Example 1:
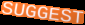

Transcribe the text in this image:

SUGGEST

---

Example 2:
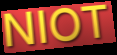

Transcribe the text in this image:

NIOT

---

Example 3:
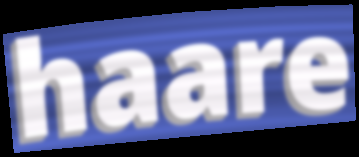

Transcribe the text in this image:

haare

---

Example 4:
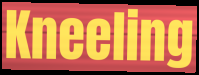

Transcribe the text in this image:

Kneeling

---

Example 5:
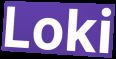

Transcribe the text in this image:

Loki